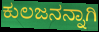
ಕುಲಜನನ್ನಾಗಿ